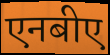
एनबीए